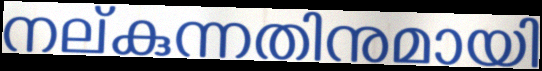
നല്‌കുന്നതിനുമായി